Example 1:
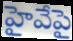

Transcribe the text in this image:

హైవేపై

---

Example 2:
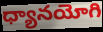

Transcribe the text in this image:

ధ్యానయోగి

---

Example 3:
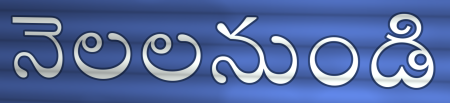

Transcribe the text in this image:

నెలలనుండి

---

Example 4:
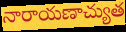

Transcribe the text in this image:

నారాయణాచ్యుత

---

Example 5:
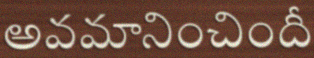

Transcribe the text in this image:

అవమానించిందీ